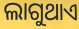
ଲାଗୁଥାଏ